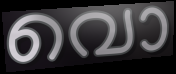
വൊ